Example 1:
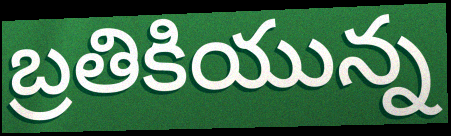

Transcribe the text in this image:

బ్రతికియున్న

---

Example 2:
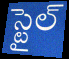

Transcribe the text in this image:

స్టైల్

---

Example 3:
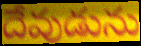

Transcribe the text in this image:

దేవుడును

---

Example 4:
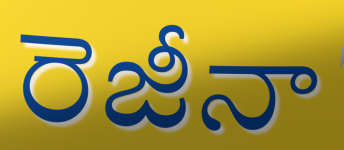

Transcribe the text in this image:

రెజీనా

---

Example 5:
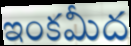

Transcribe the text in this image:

ఇంకమీద